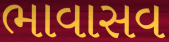
ભાવાસવ